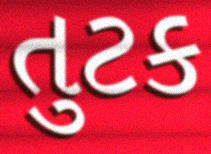
તુટક